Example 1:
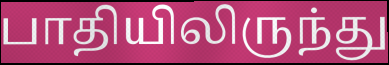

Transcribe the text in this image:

பாதியிலிருந்து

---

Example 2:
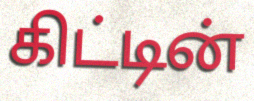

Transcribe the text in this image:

கிட்டின்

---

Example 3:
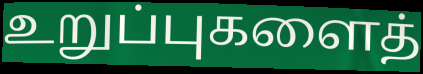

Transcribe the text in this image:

உறுப்புகளைத்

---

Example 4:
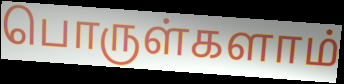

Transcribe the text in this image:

பொருள்களாம்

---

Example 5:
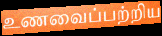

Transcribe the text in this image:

உணவைப்பற்றிய